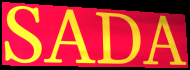
SADA